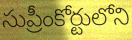
సుప్రీంకోర్టులోని